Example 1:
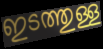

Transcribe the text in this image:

ഇടത്തുള്ള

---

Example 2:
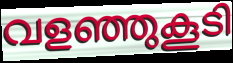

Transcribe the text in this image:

വളഞ്ഞുകൂടി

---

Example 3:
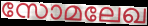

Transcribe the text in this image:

സോമലേഖ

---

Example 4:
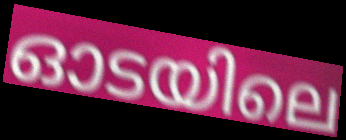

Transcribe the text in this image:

ഓടയിലെ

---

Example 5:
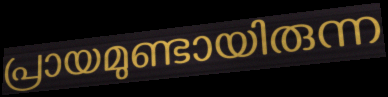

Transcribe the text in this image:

പ്രായമുണ്ടായിരുന്ന